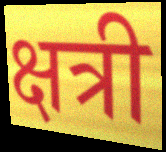
क्षत्री